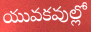
యువకవుల్లో